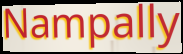
Nampally